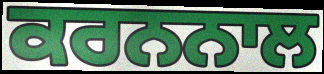
ਕਰਨਨਾਲ